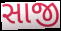
સાજી